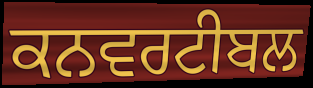
ਕਨਵਰਟੀਬਲ